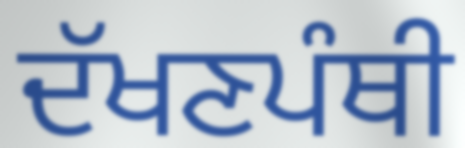
ਦੱਖਣਪੰਥੀ